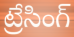
ట్రేసింగ్